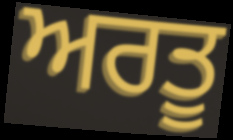
ਅਰਤੂ